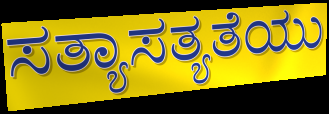
ಸತ್ಯಾಸತ್ಯತೆಯು